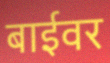
बाईवर